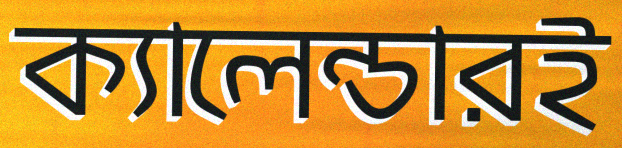
ক্যালেন্ডারই